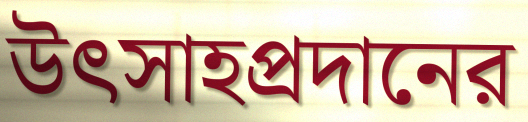
উৎসাহপ্রদানের